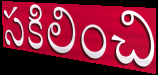
సకిలించి